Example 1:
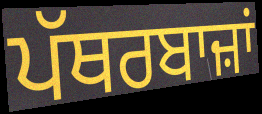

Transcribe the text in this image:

ਪੱਥਰਬਾਜ਼ਾਂ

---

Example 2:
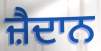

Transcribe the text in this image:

ਜ਼ੈਦਾਨ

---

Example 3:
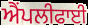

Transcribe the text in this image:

ਐਂਪਲੀਫਾਈ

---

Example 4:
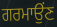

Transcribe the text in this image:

ਗਰਮਾਉਂਣ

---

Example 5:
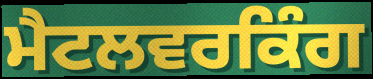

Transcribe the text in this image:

ਮੈਟਲਵਰਕਿੰਗ